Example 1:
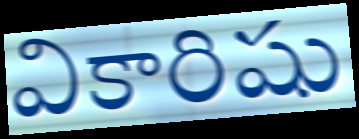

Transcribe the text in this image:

వికారిషు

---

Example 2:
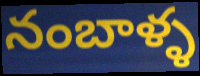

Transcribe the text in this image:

నంబాళ్ళ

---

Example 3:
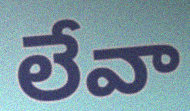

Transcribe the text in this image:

లేవా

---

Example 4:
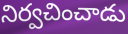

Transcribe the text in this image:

నిర్వచించాడు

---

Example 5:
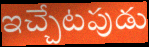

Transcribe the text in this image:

ఇచ్చేటపుడు